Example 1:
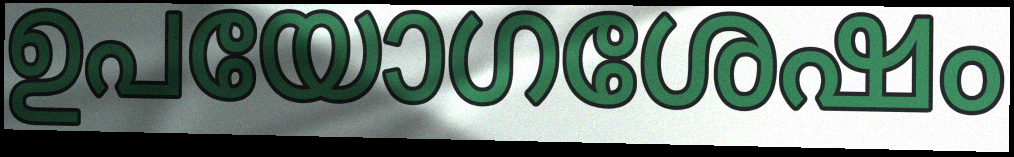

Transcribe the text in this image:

ഉപയോഗശേഷം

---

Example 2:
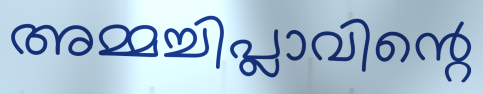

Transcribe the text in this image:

അമ്മച്ചിപ്ലാവിന്റെ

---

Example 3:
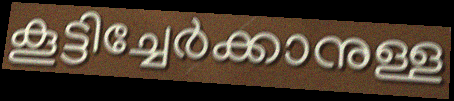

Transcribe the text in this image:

കൂട്ടിച്ചേർക്കാനുള്ള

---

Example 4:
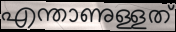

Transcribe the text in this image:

എന്താണുള്ളത്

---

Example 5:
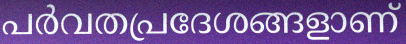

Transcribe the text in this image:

പർവതപ്രദേശങ്ങളാണ്